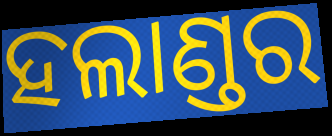
ହଲାଣ୍ଡର